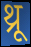
थ्रू